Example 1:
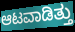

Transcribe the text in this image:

ಆಟವಾಡಿತ್ತು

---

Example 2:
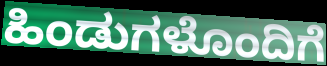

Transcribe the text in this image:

ಹಿಂಡುಗಳೊಂದಿಗೆ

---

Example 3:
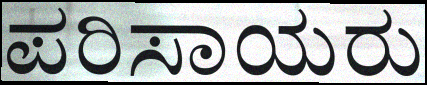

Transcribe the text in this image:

ಪರಿಸಾಯರು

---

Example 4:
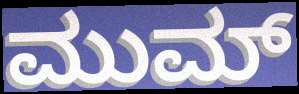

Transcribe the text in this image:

ಮುಮ್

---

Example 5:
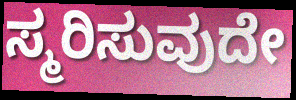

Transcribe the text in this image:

ಸ್ಮರಿಸುವುದೇ